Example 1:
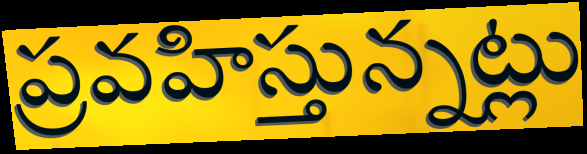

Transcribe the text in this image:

ప్రవహిస్తున్నట్లు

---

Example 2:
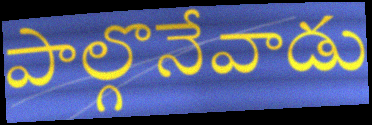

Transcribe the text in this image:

పాల్గొనేవాడు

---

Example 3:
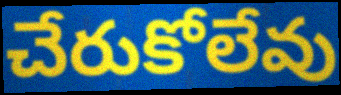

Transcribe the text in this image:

చేరుకోలేవు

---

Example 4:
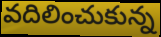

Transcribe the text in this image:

వదిలించుకున్న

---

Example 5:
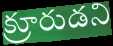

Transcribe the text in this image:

క్రూరుడని